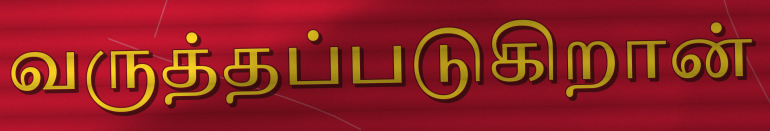
வருத்தப்படுகிறான்